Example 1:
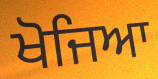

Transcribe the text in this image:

ਖੋਜਿਆ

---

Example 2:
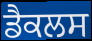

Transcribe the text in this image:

ਡੈਕਲਸ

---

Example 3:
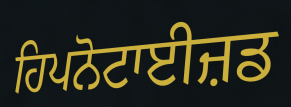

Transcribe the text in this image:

ਹਿਪਨੋਟਾਈਜ਼ਡ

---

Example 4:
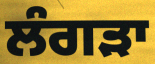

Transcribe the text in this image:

ਲੰਗੜਾ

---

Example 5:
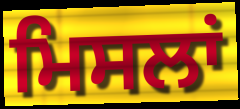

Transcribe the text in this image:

ਮਿਸਲਾਂ